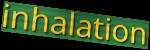
inhalation